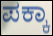
ಪಕ್ಕಾ